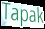
Tapak